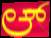
ಆ್